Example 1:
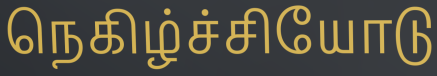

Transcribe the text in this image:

நெகிழ்ச்சியோடு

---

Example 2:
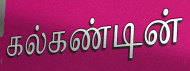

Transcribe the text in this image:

கல்கண்டின்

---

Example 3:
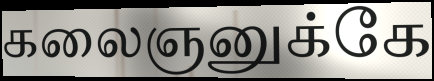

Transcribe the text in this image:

கலைஞனுக்கே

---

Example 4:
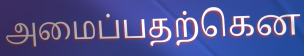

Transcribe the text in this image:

அமைப்பதற்கென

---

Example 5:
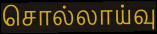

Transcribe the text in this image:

சொல்லாய்வு